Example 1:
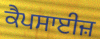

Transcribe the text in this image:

ਕੈਪਸਾਈਜ਼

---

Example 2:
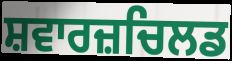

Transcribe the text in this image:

ਸ਼ਵਾਰਜ਼ਚਿਲਡ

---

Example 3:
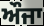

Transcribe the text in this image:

ਔਜਾ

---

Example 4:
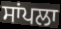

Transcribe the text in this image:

ਸਾਂਪਲਾ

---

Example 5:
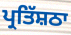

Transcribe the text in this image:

ਪ੍ਰਤਿੱਸ਼ਠਾ